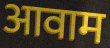
आवाम